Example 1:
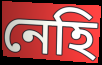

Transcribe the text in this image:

নেহি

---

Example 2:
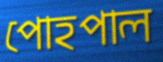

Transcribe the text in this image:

পোহপাল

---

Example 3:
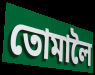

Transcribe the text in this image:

তোমালৈ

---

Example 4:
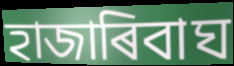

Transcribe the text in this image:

হাজাৰিবাঘ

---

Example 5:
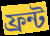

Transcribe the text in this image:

ফ্ৰন্ট